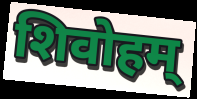
शिवोहम्